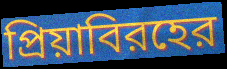
প্রিয়াবিরহের